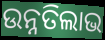
ଉନ୍ନତିଲାଭ